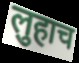
लुहाच